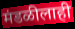
मंडळीलाही